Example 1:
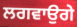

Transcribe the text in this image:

ਲਗਵਾਉਗੇ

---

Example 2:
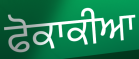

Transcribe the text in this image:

ਫੋਕਾਕੀਆ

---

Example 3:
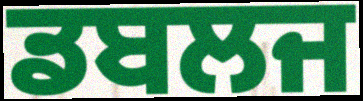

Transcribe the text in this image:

ਡਬਲਜ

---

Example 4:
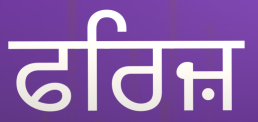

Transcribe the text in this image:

ਫਰਿਜ਼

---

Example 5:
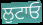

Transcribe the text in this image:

ਲੁਟਾਓ